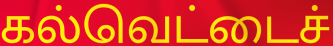
கல்வெட்டைச்